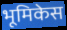
भूमिकेस